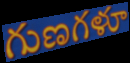
గుణగళూ